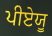
ਪੀਏਯੂ